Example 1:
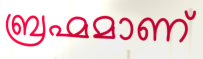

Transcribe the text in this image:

ബ്രഹ്മമാണ്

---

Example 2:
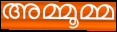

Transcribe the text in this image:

അമ്മൂമ്മ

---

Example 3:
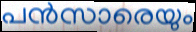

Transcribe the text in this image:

പൻസാരെയും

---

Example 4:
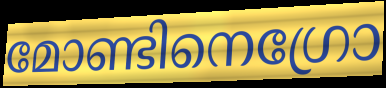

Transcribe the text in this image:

മോണ്ടിനെഗ്രോ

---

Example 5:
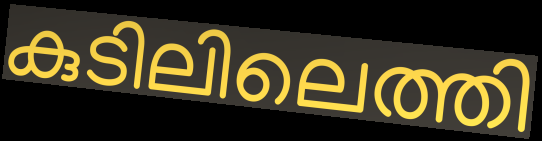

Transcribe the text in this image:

കുടിലിലെത്തി